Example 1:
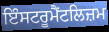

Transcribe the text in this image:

ਇੰਸਟਰੂਮੈਂਟਲਿਜ਼ਮ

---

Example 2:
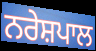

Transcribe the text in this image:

ਨਰੇਸ਼ਪਾਲ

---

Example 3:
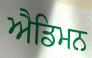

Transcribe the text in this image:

ਐਡਿਮਨ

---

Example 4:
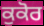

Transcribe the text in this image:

ਕੁਕੋਰ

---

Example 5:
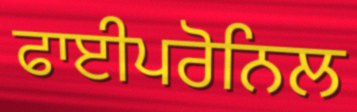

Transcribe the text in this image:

ਫਾਈਪਰੋਨਿਲ